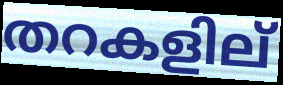
തറകളില്